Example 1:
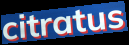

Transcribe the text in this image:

citratus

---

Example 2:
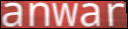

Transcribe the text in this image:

anwar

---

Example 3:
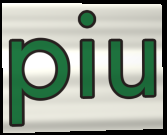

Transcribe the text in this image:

piu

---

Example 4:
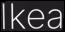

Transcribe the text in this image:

Ikea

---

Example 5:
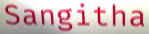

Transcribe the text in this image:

Sangitha